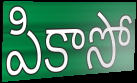
పికాసో